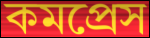
কমপ্রেস